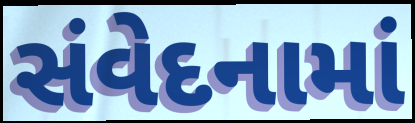
સંવેદનામાં